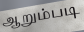
ஆறும்படி